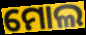
ମୋଲ